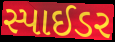
સ્પાઈડર